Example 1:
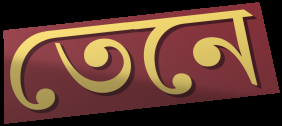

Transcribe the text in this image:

তেনে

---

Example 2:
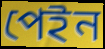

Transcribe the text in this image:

পেইন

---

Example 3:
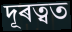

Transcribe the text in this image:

দূৰত্বত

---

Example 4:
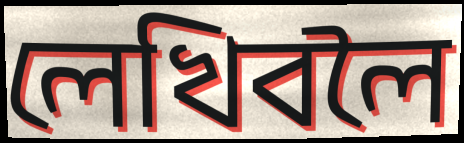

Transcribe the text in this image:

লেখিবলৈ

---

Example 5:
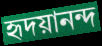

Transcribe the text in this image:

হৃদয়ানন্দ